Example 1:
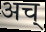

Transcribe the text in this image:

अच्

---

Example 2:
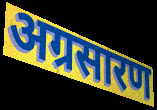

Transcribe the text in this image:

अग्रसारण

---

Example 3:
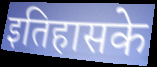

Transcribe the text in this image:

इतिहासके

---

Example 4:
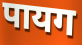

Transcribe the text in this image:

पायग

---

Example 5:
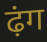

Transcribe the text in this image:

ढ़ंग